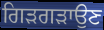
ਗਿੜਗੜਾਉਣ